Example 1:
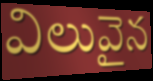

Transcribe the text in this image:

విలువైన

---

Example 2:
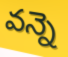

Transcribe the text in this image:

వన్నె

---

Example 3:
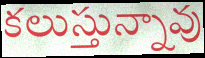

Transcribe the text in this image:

కలుస్తున్నావు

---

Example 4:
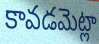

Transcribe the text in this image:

కావడమెట్లా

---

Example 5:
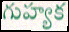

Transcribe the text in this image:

గుహ్యక